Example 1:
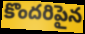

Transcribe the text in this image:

కొందరిపైన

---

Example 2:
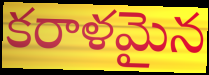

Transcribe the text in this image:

కరాళమైన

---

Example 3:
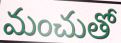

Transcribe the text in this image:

మంచుతో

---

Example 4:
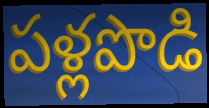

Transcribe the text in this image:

పళ్లపొడి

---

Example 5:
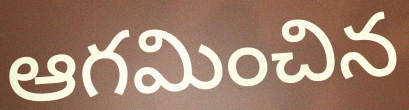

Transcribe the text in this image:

ఆగమించిన